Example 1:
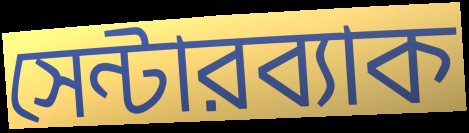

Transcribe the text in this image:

সেন্টারব্যাক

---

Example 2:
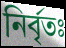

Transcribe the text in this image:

নির্বৃতঃ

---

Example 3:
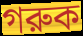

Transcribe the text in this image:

গরুক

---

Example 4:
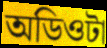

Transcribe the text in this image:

অডিওটা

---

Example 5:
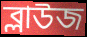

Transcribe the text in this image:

ব্লাউজ